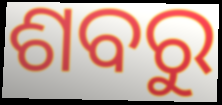
ଶବରୁ